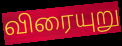
விரையுறு